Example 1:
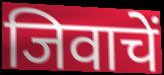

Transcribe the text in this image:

जिवाचें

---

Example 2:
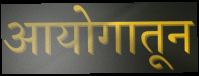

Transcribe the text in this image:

आयोगातून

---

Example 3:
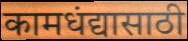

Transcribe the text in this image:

कामधंद्यासाठी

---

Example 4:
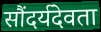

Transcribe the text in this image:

सौंदर्यदेवता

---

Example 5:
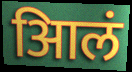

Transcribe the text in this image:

आिलं